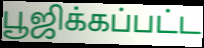
பூஜிக்கப்பட்ட